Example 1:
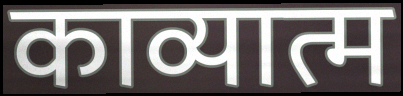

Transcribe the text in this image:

काव्यात्म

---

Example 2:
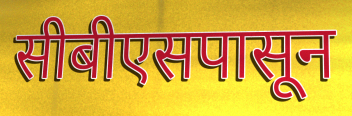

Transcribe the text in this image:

सीबीएसपासून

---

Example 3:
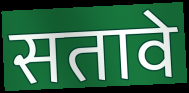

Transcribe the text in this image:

सतावे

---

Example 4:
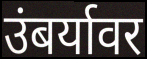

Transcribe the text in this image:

उंबर्यावर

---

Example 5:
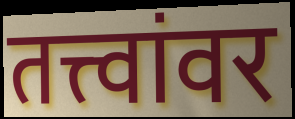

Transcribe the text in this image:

तत्त्वांवर